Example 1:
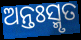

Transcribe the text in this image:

ଅନ୍ତଃସ୍ମୃତ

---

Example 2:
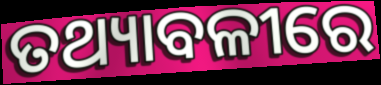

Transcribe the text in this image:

ତଥ୍ୟାବଳୀରେ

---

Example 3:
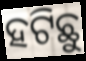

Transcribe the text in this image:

ହଟିଛୁ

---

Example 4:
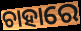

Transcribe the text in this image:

ଚାହାରେ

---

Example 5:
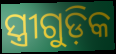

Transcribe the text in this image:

ସ୍ତ୍ରୀଗୁଡ଼ିକ